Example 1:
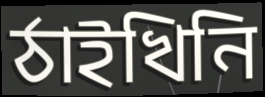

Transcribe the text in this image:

ঠাইখিনি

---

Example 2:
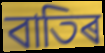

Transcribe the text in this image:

বাতিৰ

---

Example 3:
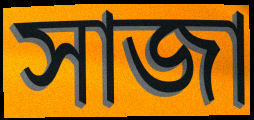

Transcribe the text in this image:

সাজা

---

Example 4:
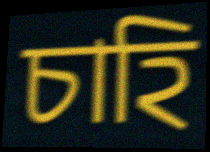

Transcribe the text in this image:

চাহি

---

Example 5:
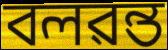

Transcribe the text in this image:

বলৱন্ত